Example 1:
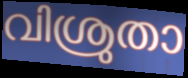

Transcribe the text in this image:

വിശ്രുതാ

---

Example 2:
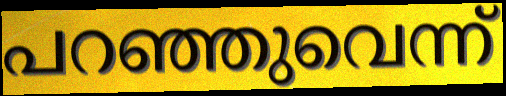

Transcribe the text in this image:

പറഞ്ഞുവെന്ന്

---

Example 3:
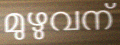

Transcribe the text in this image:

മുഴുവന്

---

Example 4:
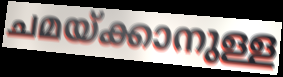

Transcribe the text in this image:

ചമയ്ക്കാനുള്ള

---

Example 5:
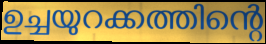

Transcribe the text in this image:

ഉച്ചയുറക്കത്തിന്റെ